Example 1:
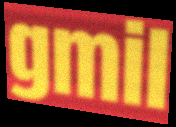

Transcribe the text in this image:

gmil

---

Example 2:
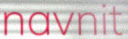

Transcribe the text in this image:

navnit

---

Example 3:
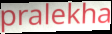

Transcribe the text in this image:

pralekha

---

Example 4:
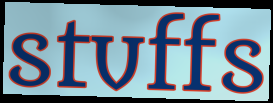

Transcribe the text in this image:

stuffs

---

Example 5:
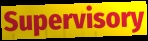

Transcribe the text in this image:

Supervisory